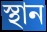
স্থান